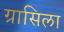
ग्रासिला